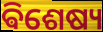
ଵିଶେଷ୍ୟ